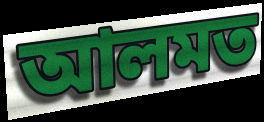
আলমত